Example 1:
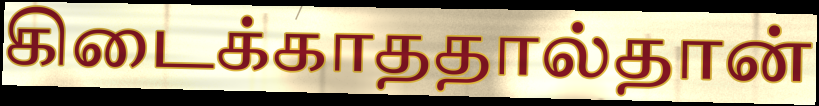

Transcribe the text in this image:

கிடைக்காததால்தான்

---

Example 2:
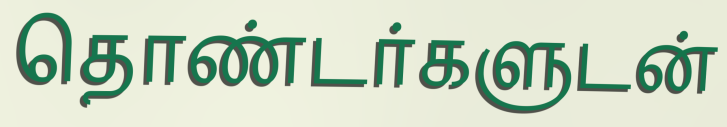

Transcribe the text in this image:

தொண்டர்களுடன்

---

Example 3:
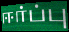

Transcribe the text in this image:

ஈர்ப்பு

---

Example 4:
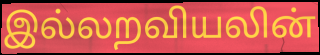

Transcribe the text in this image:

இல்லறவியலின்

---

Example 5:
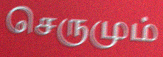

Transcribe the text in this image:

செருமும்